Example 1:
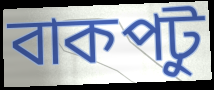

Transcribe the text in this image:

বাকপটু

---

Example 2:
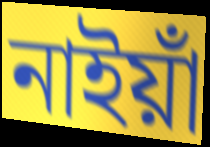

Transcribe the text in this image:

নাইয়াঁ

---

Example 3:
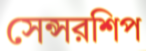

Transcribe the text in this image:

সেন্সরশিপ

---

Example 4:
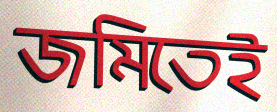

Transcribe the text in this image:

জমিতেই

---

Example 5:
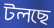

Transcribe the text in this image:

টলছে